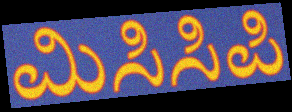
ಮಿಸಿಸಿಪಿ